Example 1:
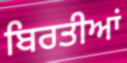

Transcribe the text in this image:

ਬਿਰਤੀਆਂ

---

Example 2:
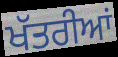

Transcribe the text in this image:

ਖੱਤਰੀਆਂ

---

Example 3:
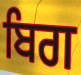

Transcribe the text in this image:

ਬਿਗ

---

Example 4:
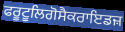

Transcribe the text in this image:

ਫਰੂਟੂਲਿਗੋਸੈਕਰਾਇਡਜ਼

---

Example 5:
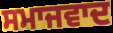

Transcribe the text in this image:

ਸਮਾਜਵਾਦ